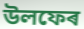
উলফেৰ